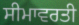
ਸੀਮਾਵਰਤੀ